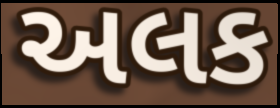
અલક